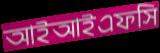
আইআইএফসি